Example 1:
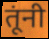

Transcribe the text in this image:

तूंनी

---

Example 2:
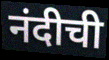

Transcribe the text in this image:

नंदीची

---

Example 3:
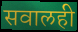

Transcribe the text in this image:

सवालही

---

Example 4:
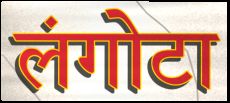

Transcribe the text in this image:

लंगोटा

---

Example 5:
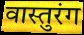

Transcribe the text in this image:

वास्तुरंग